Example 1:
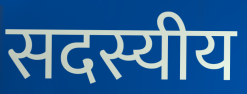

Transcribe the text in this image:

सदस्यीय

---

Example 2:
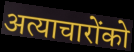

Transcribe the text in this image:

अत्याचारोंको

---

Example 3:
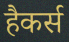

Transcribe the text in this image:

हैकर्स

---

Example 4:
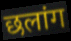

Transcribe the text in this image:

छलांग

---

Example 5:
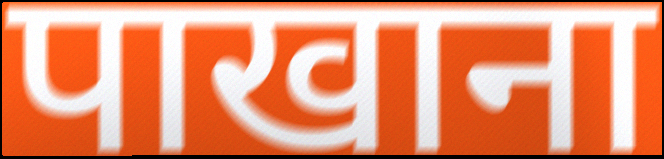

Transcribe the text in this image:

पाखाना